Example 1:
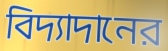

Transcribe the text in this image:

বিদ্যাদানের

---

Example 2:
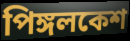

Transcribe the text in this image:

পিঙ্গলকেশ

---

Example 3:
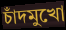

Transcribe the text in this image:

চাঁদমুখো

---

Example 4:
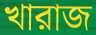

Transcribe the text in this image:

খারাজ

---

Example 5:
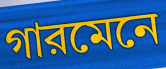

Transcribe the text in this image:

গারমেনে